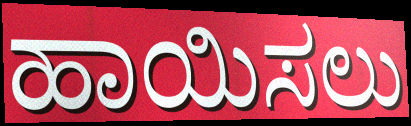
ಹಾಯಿಸಲು